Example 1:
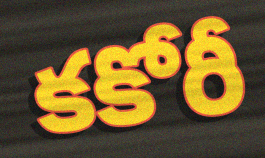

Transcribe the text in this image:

కకోరీ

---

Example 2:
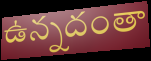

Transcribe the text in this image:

ఉన్నదంతా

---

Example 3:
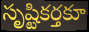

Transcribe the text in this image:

సృష్టికర్తకూ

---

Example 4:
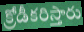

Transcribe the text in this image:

క్రోడీకరిస్తారు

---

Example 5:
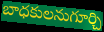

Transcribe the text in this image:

బాధకులనుగూర్చి